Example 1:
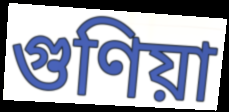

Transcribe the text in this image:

গুণিয়া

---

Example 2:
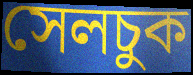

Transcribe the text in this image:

সেলচুক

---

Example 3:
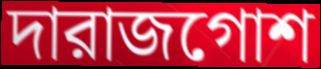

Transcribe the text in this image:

দারাজগোশ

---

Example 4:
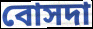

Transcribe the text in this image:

বোসদা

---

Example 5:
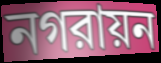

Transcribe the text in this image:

নগরায়ন